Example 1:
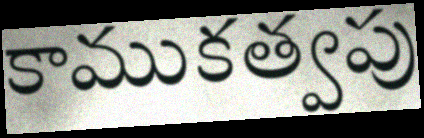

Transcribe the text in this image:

కాముకత్వపు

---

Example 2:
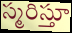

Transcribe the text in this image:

స్మరిస్తూ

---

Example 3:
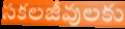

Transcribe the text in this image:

సకలజీవులకు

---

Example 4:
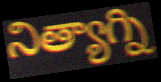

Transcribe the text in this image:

నిత్యాగ్ని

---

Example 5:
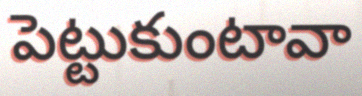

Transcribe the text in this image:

పెట్టుకుంటావా